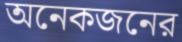
অনেকজনের